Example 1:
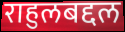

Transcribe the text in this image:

राहुलबद्दल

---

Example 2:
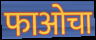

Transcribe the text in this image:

फाओचा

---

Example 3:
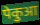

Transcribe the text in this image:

पेकुआ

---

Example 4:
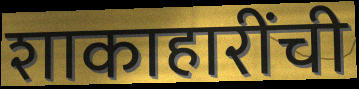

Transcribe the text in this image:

शाकाहारींची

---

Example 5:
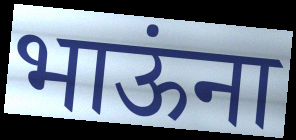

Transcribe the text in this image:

भाऊंना